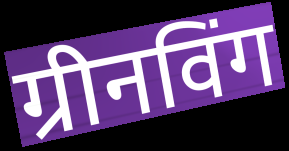
ग्रीनविंग